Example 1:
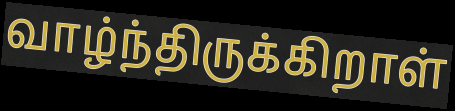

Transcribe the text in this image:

வாழ்ந்திருக்கிறாள்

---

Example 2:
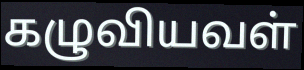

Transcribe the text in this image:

கழுவியவள்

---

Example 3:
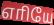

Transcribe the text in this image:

எரியே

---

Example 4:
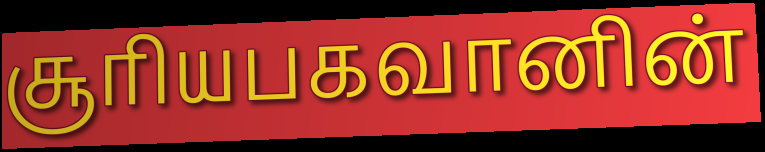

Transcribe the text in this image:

சூரியபகவானின்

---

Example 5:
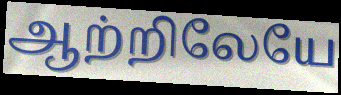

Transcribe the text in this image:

ஆற்றிலேயே